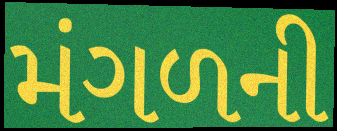
મંગળની